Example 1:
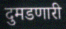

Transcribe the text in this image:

दुमडणारी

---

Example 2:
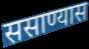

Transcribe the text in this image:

ससाण्यास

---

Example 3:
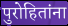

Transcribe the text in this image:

पुरोहितांना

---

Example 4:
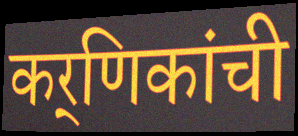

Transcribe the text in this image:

कर्णिकांची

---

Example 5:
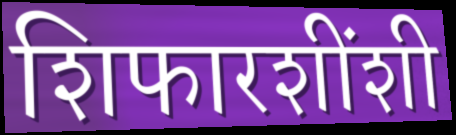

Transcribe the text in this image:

शिफारशींशी